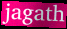
jagath